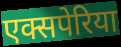
एक्सपेरिया